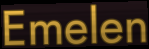
Emelen